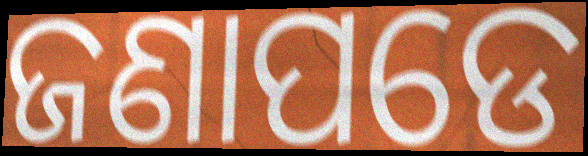
ଜଣାପଡେ